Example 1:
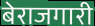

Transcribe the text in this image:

बेराजगारी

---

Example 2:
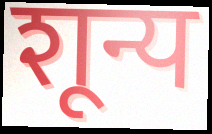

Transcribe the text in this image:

शून्य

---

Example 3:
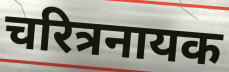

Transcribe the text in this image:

चरित्रनायक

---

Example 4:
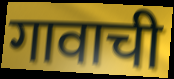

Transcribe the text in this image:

गावाची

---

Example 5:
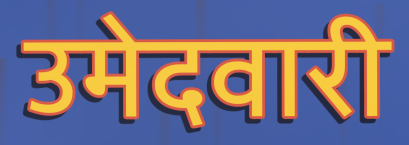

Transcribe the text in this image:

उमेदवारी